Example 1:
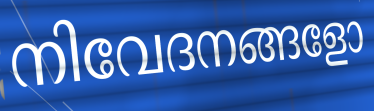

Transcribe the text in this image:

നിവേദനങ്ങളോ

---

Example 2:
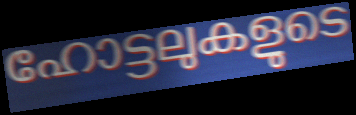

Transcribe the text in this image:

ഹോട്ടലുകളുടെ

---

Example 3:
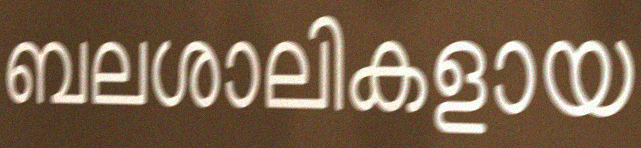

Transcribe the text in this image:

ബലശാലികളായ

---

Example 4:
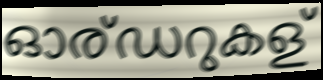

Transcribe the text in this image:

ഓര്ഡറുകള്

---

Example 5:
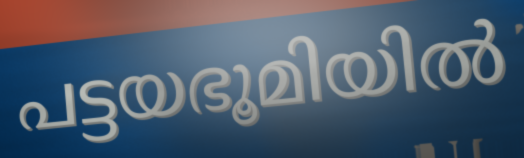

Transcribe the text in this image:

പട്ടയഭൂമിയിൽ